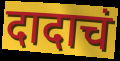
दादाचं